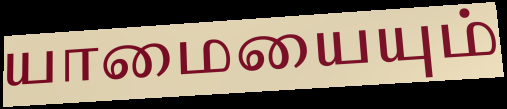
யாமையையும்